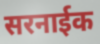
सरनाईक